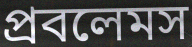
প্রবলেমস